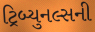
ટ્રિબ્યુનલ્સની